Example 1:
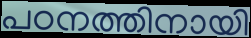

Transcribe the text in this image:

പഠനത്തിനായി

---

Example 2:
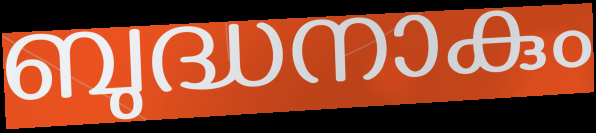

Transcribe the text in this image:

ബുദ്ധനാകും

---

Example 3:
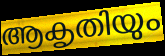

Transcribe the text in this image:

ആകൃതിയും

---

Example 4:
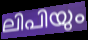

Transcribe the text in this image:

ലിപിയും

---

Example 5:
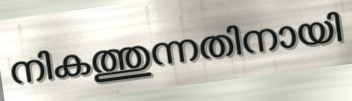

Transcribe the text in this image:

നികത്തുന്നതിനായി